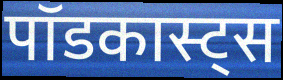
पॉडकास्ट्स